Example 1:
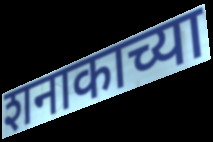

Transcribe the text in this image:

शनाकाच्या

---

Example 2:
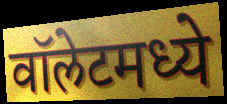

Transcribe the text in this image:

वॉलेटमध्ये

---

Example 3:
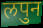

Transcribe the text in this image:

लपुन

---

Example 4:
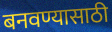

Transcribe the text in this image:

बनवण्यासाठी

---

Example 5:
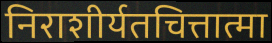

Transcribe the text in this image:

निराशीर्यतचित्तात्मा